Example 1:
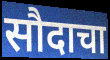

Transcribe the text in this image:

सौदाचा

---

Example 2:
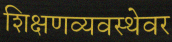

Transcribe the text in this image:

शिक्षणव्यवस्थेवर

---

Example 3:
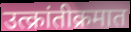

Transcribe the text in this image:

उत्क्रांतीक्रमात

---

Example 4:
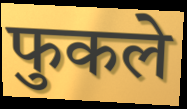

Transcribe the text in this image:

फुकले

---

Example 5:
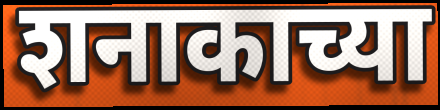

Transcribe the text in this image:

शनाकाच्या